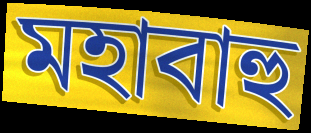
মহাবাহু